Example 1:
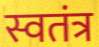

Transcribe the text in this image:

स्‍वतंत्र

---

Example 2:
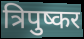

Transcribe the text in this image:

त्रिपुष्कर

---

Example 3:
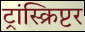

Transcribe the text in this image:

ट्रांस्क्रिप्टर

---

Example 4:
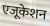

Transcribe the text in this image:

एजूकेशन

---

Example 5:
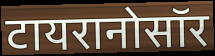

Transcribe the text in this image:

टायरानोसॉर